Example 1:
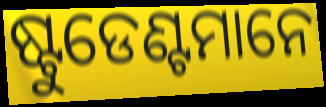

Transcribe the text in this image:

ଷ୍ଟୁଡେଣ୍ଟମାନେ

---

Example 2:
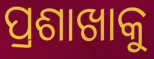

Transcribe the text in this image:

ପ୍ରଶାଖାକୁ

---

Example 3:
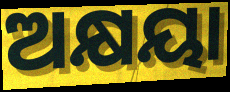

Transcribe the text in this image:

ଅକ୍ଷୟା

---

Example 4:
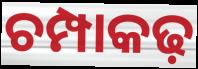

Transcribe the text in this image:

ଚମ୍ପାକଢ଼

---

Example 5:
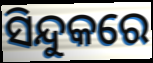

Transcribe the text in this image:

ସିନ୍ଦୁକରେ